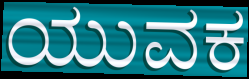
ಯುವಕ